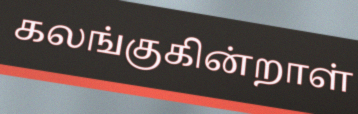
கலங்குகின்றாள்